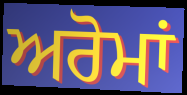
ਅਰੋਮਾਂ